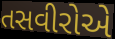
તસવીરોએ